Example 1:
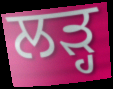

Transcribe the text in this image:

ਲੜ੍ਹ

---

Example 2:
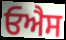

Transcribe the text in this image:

ਓਐਸ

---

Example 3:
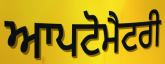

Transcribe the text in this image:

ਆਪਟੋਮੈਟਰੀ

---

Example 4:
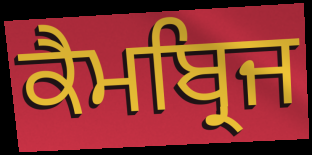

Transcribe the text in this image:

ਕੈਮਬ੍ਰਿਜ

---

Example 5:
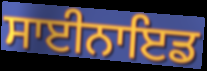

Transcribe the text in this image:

ਸਾਈਨਾਇਡ